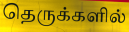
தெருக்களில்